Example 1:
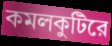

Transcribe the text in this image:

কমলকুটিরে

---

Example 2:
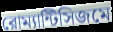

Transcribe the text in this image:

রোম্যান্টিসিজমে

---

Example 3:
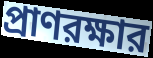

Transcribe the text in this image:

প্রাণরক্ষার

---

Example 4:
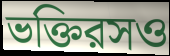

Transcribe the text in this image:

ভক্তিরসও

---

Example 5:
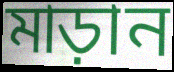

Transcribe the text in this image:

মাড়ান